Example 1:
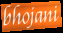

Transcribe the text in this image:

bhojani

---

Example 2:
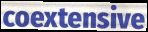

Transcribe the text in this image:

coextensive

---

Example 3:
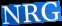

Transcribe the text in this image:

NRG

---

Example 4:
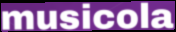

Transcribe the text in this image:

musicola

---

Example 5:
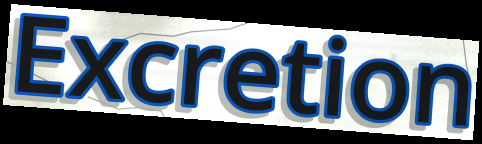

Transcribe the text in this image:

Excretion